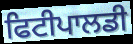
ਫਿਟੀਪਾਲਡੀ